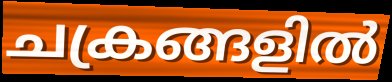
ചക്രങ്ങളിൽ